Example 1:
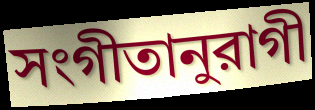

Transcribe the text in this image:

সংগীতানুরাগী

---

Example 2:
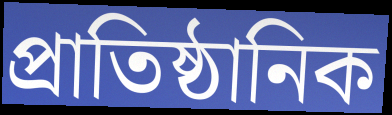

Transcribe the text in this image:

প্রাতিষ্ঠানিক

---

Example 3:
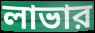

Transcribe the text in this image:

লাভার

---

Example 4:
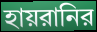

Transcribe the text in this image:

হায়রানির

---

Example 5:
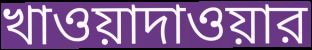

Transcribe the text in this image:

খাওয়াদাওয়ার